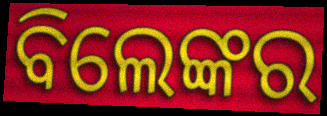
ବିଲେଙ୍କର